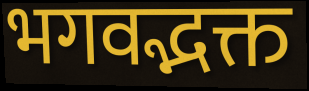
भगवद्भक्त